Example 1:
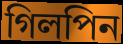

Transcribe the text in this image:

গিলপিন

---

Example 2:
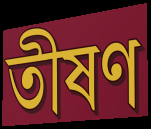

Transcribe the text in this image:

তীষণ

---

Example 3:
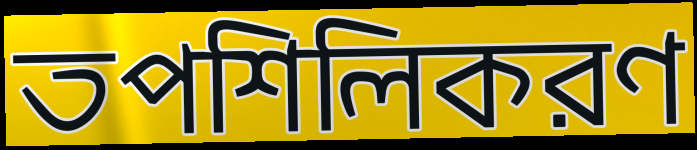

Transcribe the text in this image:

তপশিলিকরণ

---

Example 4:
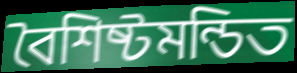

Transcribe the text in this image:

বৈশিষ্টমন্ডিত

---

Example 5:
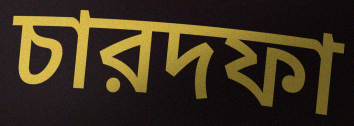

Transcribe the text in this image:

চারদফা